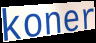
koner